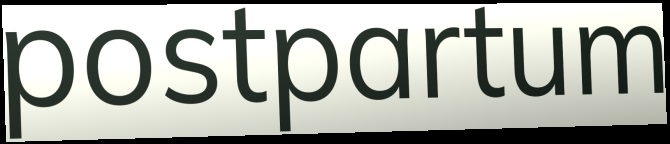
postpartum